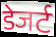
डेजर्ट